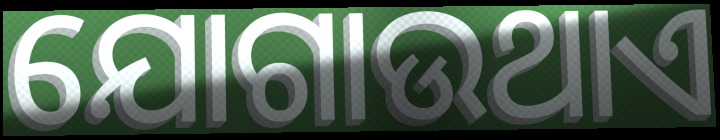
ଯୋଗାଉଥାଏ